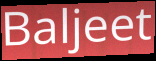
Baljeet